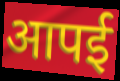
आपई